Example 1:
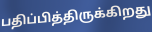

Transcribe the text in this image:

பதிப்பித்திருக்கிறது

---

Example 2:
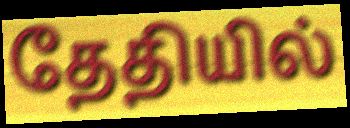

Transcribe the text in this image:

தேதியில்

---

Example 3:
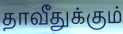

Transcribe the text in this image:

தாவீதுக்கும்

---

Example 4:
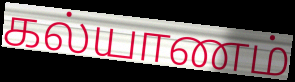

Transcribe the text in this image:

கல்யாணம்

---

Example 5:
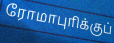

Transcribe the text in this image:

ரோமாபுரிக்குப்